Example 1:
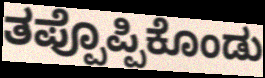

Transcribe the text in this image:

ತಪ್ಪೊಪ್ಪಿಕೊಂಡು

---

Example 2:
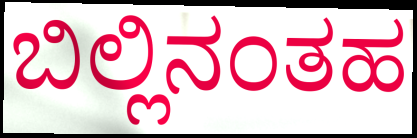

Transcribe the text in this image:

ಬಿಲ್ಲಿನಂತಹ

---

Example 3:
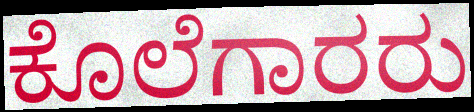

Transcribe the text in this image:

ಕೊಲೆಗಾರರು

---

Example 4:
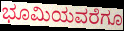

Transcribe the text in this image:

ಭೂಮಿಯವರೆಗೂ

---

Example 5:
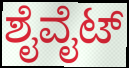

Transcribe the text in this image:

ಶೈವೈಟ್